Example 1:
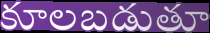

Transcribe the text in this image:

కూలబడుతూ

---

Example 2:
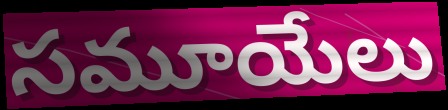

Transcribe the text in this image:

సమూయేలు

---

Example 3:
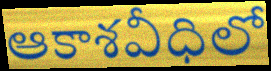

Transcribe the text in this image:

ఆకాశవీధిలో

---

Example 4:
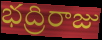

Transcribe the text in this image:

భద్రిరాజు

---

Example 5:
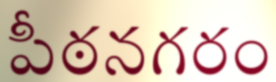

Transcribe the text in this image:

పీఠనగరం